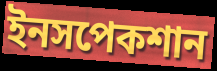
ইনসপেকশান